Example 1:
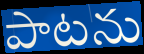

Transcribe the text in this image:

పాటను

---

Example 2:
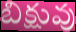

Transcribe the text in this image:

బిక్షువు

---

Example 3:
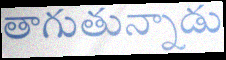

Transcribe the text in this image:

తాగుతున్నాడు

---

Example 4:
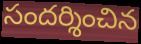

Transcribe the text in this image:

సందర్శించిన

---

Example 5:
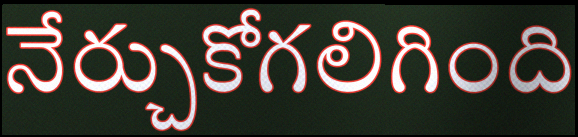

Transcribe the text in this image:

నేర్చుకోగలిగింది